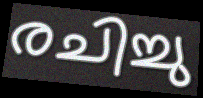
രചിച്ചു